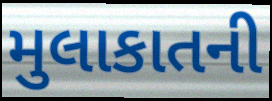
મુલાકાતની